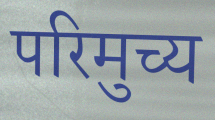
परिमुच्य